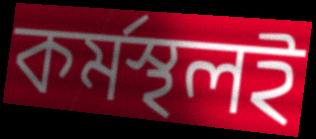
কর্মস্থলই